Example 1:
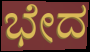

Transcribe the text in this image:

ಭೇದ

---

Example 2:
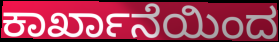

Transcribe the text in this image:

ಕಾರ್ಖಾನೆಯಿಂದ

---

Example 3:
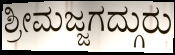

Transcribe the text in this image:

ಶ್ರೀಮಜ್ಜಗದ್ಗುರು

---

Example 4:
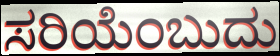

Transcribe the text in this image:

ಸರಿಯೆಂಬುದು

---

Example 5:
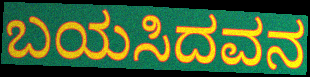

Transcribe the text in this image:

ಬಯಸಿದವನ